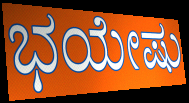
ಭಯೇಷು